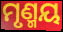
ମୃଣ୍ମୟ